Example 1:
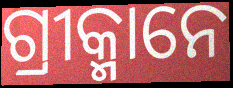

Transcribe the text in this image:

ଗ୍ରୀକ୍ମାନେ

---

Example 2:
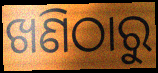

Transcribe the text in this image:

ଖଣିଠାରୁ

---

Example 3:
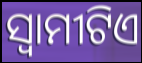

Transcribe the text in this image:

ସ୍ୱାମୀଟିଏ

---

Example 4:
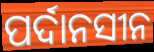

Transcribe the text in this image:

ପର୍ଦାନସୀନ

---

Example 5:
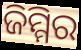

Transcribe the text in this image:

ଜିମ୍ମିର